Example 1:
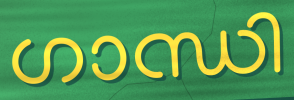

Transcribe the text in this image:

ഗാന്ധി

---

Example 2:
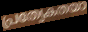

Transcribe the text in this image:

പ്രത്യേകതയാ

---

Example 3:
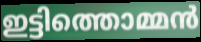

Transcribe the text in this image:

ഇട്ടിത്തൊമ്മൻ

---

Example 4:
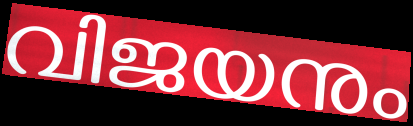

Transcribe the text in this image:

വിജയനും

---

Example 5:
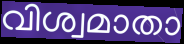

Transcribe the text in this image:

വിശ്വമാതാ